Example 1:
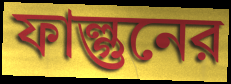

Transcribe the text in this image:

ফাল্গুনের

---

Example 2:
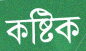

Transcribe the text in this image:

কষ্টিক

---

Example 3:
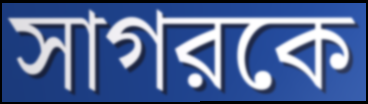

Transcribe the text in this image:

সাগরকে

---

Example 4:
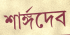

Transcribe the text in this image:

শার্ঙ্গদেব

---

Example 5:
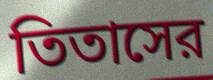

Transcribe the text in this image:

তিতাসের